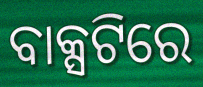
ବାକ୍ସଟିରେ